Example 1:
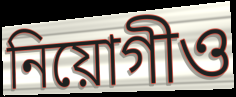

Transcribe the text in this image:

নিয়োগীও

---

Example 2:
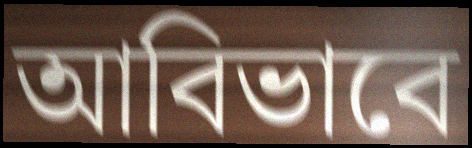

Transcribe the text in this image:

আবিভাবে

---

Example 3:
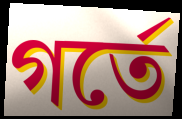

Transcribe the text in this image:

গর্তে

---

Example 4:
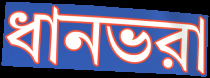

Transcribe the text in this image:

ধানভরা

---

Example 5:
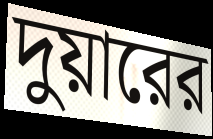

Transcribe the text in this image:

দুয়ারের